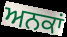
ਅਨਕਾਂ